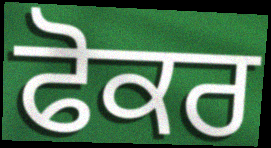
ਫੋਕਰ